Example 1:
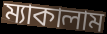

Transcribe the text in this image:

ম্যাকালাম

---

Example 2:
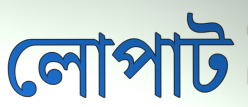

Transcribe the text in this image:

লোপাট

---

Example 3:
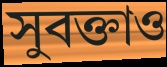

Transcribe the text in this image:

সুবক্তাও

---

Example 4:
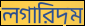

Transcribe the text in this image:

লগারিদম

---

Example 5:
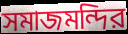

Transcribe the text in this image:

সমাজমন্দির